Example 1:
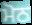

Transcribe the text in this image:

ਮੋਠ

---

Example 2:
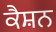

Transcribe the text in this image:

ਕੈਸ਼ਨ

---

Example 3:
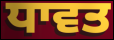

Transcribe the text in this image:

ਧਾਵਤ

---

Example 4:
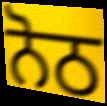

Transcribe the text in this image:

ਨੋਠ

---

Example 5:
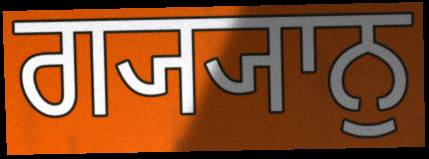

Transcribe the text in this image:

ਗ੍ਯ੍ਯਾਨੁ